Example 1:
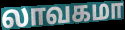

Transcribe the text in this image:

லாவகமா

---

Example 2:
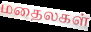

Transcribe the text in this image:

மதைலகள்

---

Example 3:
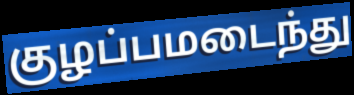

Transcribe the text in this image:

குழப்பமடைந்து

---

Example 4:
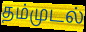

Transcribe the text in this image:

தம்முடல்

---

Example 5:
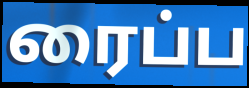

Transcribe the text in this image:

ரைப்ப